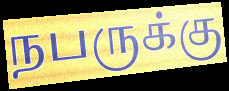
நபருக்கு